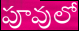
పూవులో